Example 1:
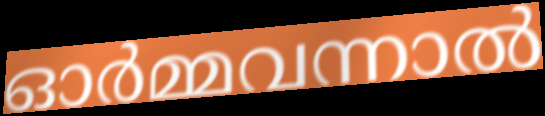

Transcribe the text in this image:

ഓർമ്മവന്നാൽ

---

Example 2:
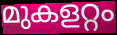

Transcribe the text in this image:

മുകളറ്റം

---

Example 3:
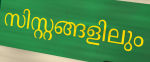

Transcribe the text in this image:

സിസ്റ്റങ്ങളിലും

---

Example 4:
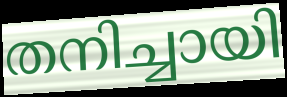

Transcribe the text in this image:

തനിച്ചായി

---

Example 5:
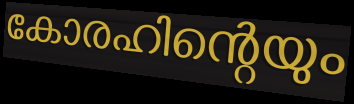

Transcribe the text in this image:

കോരഹിന്റെയും